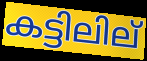
കട്ടിലില്